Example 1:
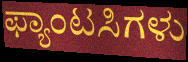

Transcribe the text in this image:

ಫ್ಯಾಂಟಸಿಗಳು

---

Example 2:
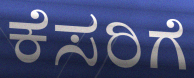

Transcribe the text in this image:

ಕೆಸರಿಗೆ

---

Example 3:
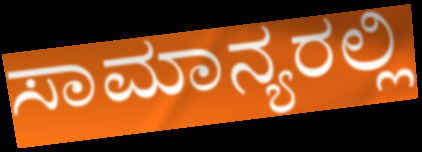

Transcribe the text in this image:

ಸಾಮಾನ್ಯರಲ್ಲಿ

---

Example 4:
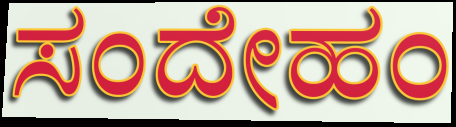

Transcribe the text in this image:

ಸಂದೇಹಂ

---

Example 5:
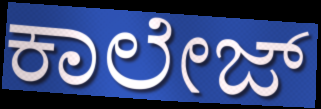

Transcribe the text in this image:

ಕಾಲೇಜ್